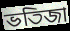
ভতিজা